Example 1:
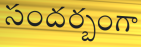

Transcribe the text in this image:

సందర్బంగా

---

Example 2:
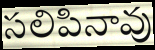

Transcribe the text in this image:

సలిపినావు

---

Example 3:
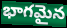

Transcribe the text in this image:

భాగమైన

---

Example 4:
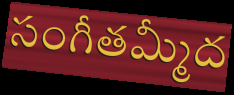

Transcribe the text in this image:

సంగీతమ్మీద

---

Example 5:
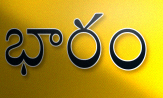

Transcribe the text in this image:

భారం